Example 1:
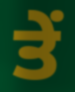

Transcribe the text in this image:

ਤੇੰ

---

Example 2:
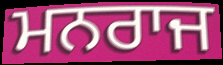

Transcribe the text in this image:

ਮਨਰਾਜ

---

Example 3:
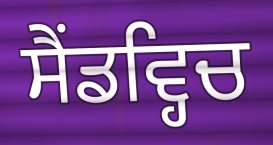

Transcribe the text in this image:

ਸੈਂਡਵ੍ਹਿਚ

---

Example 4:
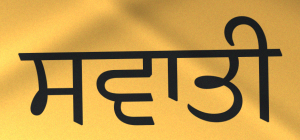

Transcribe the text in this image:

ਸਵਾਤੀ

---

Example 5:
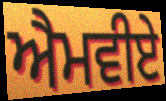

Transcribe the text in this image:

ਐਮਵੀਏ